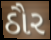
ઠૌર